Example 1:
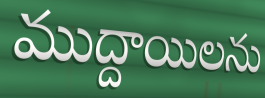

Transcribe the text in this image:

ముద్దాయిలను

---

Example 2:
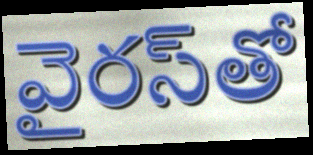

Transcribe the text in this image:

వైరస్‌తో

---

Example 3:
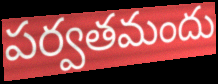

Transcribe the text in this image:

పర్వతమందు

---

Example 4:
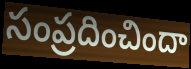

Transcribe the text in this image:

సంప్రదించిందా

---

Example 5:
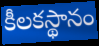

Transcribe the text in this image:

కీలకస్థానం